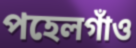
পহেলগাঁও